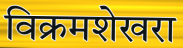
विक्रमशेखरा